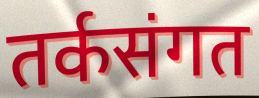
तर्कसंगत